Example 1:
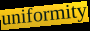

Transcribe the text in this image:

uniformity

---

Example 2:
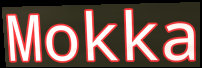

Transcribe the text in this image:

Mokka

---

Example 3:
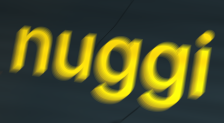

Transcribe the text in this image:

nuggi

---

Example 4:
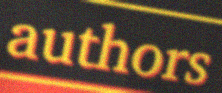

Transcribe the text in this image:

authors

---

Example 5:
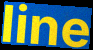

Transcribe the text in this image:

line